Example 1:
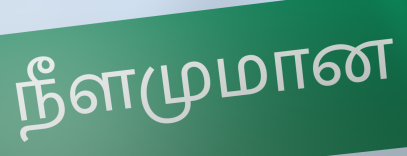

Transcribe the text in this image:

நீளமுமான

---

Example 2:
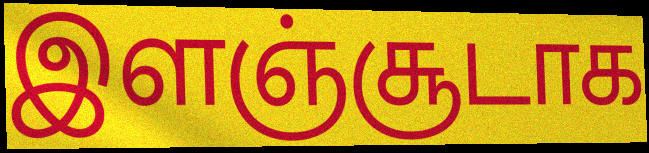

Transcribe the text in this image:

இளஞ்சூடாக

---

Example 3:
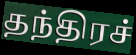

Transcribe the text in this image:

தந்திரச்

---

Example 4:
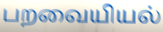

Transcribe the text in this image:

பறவையியல்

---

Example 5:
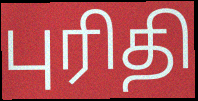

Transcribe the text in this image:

புரிதி